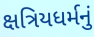
ક્ષત્રિયધર્મનું